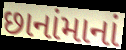
છાનાંમાનાં